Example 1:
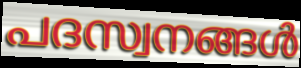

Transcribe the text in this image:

പദസ്വനങ്ങൾ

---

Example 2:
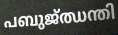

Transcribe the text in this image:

പബുജ്ഝന്തി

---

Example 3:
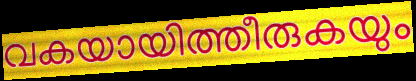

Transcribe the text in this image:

വകയായിത്തീരുകയും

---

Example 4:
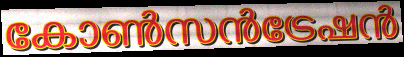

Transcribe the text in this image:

കോൺസൻട്രേഷൻ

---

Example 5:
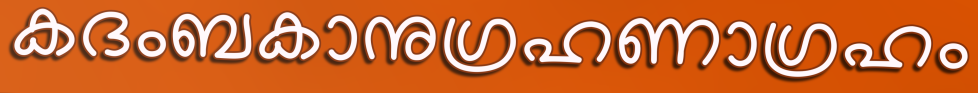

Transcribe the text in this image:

കദംബകാനുഗ്രഹണാഗ്രഹം